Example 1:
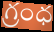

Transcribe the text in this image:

గ్రంధ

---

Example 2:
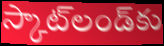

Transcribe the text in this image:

స్కాట్‌లండ్‌కు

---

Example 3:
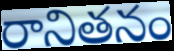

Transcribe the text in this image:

రానితనం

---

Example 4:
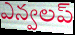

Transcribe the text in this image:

ఎన్వలప్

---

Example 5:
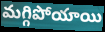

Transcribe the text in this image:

మగ్గిపోయాయి